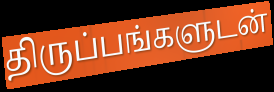
திருப்பங்களுடன்